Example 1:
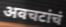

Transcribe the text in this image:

अवचटांचं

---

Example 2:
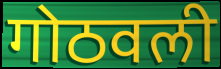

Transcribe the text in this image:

गोठवली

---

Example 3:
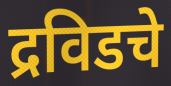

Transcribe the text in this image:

द्रविडचे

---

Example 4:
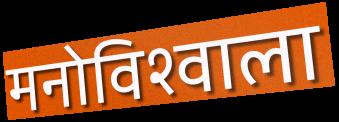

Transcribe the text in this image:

मनोविश्वाला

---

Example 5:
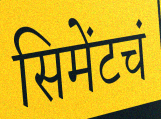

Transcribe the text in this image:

सिमेंटचं